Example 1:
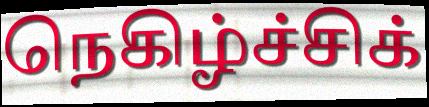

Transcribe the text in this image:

நெகிழ்ச்சிக்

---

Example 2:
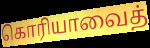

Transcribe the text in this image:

கொரியாவைத்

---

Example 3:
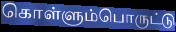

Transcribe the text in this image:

கொள்ளும்பொருட்டு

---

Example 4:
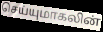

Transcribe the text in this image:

செய்யுமாகலின்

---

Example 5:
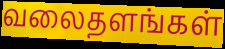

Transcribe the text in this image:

வலைதளங்கள்